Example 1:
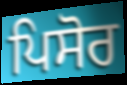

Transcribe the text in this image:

ਪਿਸੋਰ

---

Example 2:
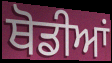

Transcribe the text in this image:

ਥੋਡੀਆਂ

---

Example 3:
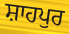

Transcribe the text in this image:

ਸ਼ਾਹਪੁਰ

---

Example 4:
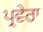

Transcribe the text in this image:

ਪ੍ਰਵੇਰਾ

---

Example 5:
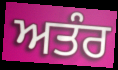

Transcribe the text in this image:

ਅਤੰਰ